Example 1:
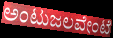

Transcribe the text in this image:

ಅಂಟುಜಲವೇಂಟೆ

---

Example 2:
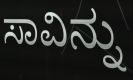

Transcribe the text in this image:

ಸಾವಿನ್ನು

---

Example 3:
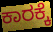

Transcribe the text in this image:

ಕಾರಕ್ಕೆ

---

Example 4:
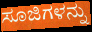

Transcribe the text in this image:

ಸೂಜಿಗಳನ್ನು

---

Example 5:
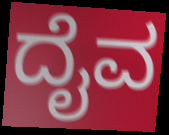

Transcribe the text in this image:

ದೈವ